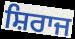
ਸ਼ਿਰਾਜ